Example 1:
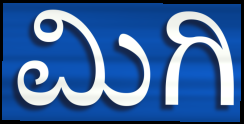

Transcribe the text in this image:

ಮಿಗಿ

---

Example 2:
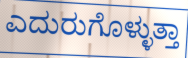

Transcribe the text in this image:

ಎದುರುಗೊಳ್ಳುತ್ತಾ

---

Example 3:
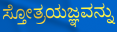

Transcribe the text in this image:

ಸ್ತೋತ್ರಯಜ್ಞವನ್ನು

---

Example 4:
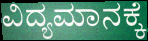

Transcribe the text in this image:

ವಿದ್ಯಮಾನಕ್ಕೆ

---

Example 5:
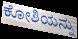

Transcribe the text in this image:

ಕೋಶಿಯನ್ನು